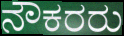
ನೌಕರರು